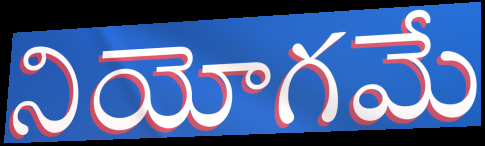
నియోగమే